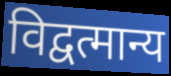
विद्वत्मान्य